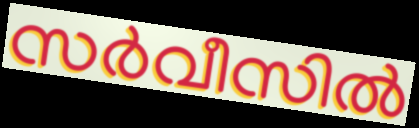
സർവീസിൽ